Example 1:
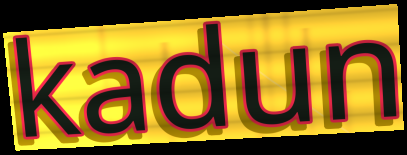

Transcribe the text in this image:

kadun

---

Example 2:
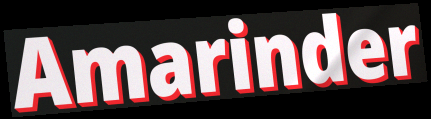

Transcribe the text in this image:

Amarinder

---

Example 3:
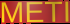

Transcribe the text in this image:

METI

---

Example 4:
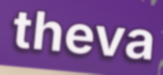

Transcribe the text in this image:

theva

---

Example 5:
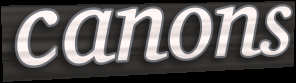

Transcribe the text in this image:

canons